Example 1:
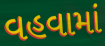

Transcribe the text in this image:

વહવામાં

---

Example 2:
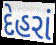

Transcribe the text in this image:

દેહરાં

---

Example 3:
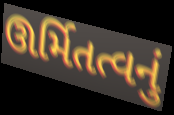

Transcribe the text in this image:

ઊર્મિતત્વનું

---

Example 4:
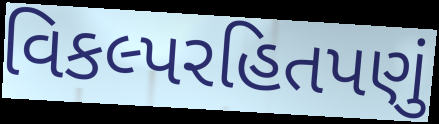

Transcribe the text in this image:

વિકલ્પરહિતપણું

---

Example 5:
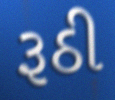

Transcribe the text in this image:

રૂઠી